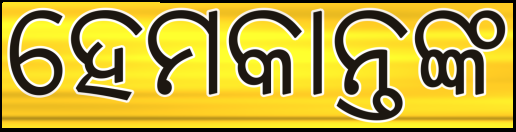
ହେମକାନ୍ତଙ୍କ